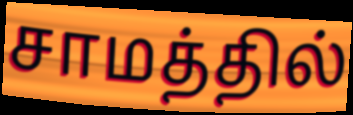
சாமத்தில்